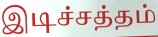
இடிச்சத்தம்